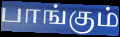
பாங்கும்